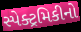
સ્પેક્ટ્રમિકીનો